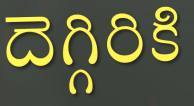
దెగ్గిరికి